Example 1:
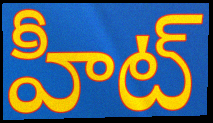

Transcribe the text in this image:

హీట్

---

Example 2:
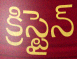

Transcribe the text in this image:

క్రిస్టైన్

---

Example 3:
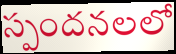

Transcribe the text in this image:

స్పందనలలో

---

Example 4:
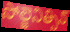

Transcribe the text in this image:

సోల్జెనిత్సిన్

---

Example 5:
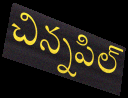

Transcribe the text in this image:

చిన్నపిల్